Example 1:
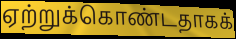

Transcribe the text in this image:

ஏற்றுக்கொண்டதாகக்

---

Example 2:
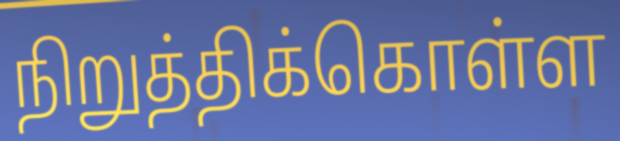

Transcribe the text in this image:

நிறுத்திக்கொள்ள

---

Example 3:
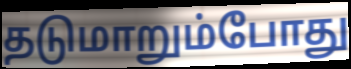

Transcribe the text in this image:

தடுமாறும்போது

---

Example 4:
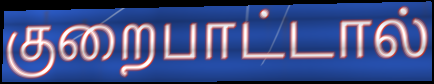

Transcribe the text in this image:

குறைபாட்டால்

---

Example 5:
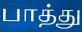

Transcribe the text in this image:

பாத்து